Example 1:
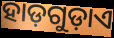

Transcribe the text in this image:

ହାଡ଼ଗୁଡ଼ାଏ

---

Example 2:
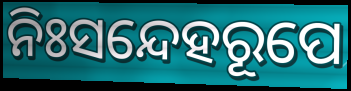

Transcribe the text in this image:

ନିଃସନ୍ଦେହରୂପେ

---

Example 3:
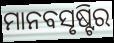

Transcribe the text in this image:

ମାନବସୃଷ୍ଟିର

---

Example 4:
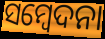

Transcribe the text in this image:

ସମ୍ବେଦନା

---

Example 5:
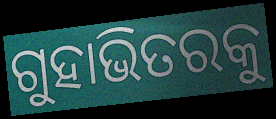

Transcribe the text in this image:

ଗୁହାଭିତରକୁ